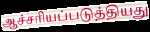
ஆச்சரியப்படுத்தியது